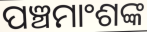
ପଞ୍ଚମାଂଶଙ୍କ